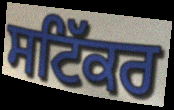
ਸਟਿੱਕਰ